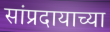
सांप्रदायाच्या